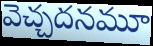
వెచ్చదనమూ